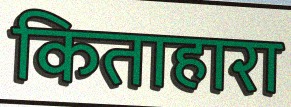
किताहारा